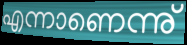
എന്നാണെന്നു്